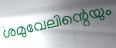
ശമുവേലിന്റെയും